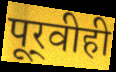
पूर्वीही